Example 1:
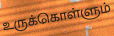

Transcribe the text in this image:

உருக்கொள்ளும்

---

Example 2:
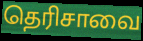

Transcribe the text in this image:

தெரிசாவை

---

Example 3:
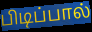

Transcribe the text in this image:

பிடிப்பால்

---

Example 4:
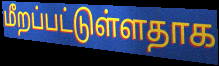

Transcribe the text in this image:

மீறப்பட்டுள்ளதாக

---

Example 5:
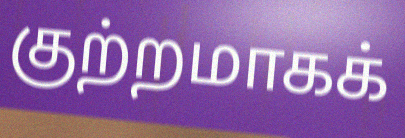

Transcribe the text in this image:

குற்றமாகக்